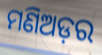
ମଣିଅଡ଼ର